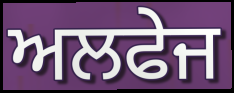
ਅਲਫੇਜ